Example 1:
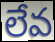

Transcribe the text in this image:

లేవ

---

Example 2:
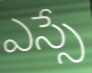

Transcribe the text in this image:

ఎస్సే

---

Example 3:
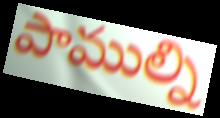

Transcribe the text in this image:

పాముల్ని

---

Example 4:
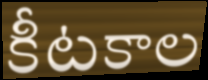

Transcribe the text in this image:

కీటకాల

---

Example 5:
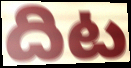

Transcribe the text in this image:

దిట